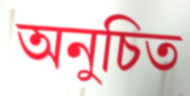
অনুচিত